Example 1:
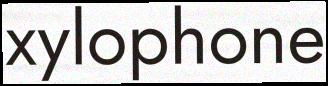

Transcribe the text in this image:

xylophone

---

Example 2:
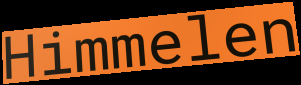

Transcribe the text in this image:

Himmelen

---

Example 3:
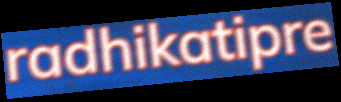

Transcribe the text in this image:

radhikatipre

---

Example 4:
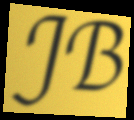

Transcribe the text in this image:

JB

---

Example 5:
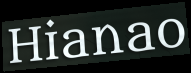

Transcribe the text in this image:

Hianao